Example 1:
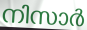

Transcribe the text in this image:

നിസാർ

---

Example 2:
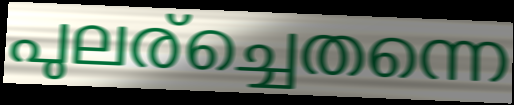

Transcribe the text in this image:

പുലര്ച്ചെതന്നെ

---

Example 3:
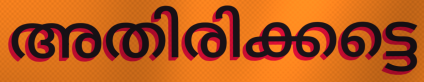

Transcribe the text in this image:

അതിരിക്കട്ടെ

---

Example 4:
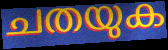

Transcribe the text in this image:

ചതയുക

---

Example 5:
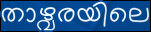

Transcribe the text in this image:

താഴ്വരയിലെ